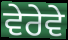
ਵੇਰੇਵੇ